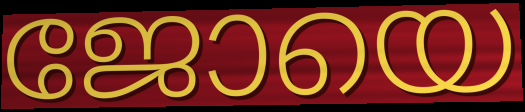
ജോയെ